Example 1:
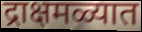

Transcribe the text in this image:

द्राक्षमळ्यात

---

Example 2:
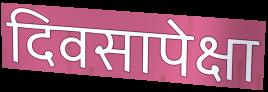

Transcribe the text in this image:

दिवसापेक्षा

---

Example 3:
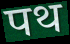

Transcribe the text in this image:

पथ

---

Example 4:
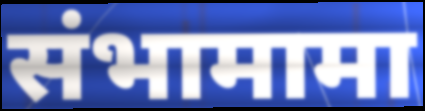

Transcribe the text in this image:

संभामामा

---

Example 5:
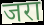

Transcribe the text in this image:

जरा